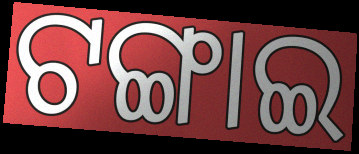
ଟଙ୍ଗାଇ